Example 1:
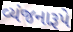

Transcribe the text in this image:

વ્યંજનારૂપે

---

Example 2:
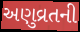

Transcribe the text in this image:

અણુવ્રતની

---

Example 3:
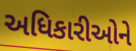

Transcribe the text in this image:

અધિકારીઓને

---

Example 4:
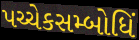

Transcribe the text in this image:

પચ્ચેકસમ્બોધિં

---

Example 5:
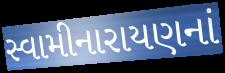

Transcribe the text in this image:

સ્વામીનારાયણનાં